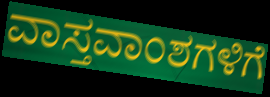
ವಾಸ್ತವಾಂಶಗಳಿಗೆ